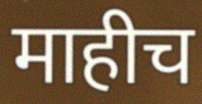
माहीच